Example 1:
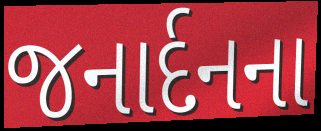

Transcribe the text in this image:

જનાર્દનના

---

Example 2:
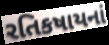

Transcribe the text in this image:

રતિકષાયનાં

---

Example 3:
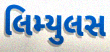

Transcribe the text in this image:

લિમ્યુલસ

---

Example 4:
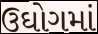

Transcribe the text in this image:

ઉઘોગમાં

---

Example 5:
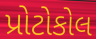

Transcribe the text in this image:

પ્રોટોકોલ